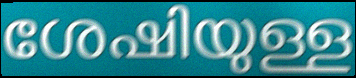
ശേഷിയുള്ള